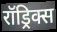
रॉड्रिक्स